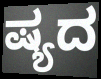
ಷ್ಯದ